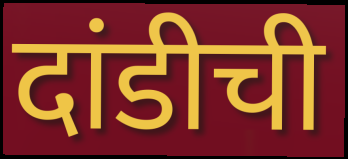
दांडीची